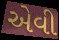
એવી